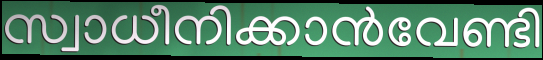
സ്വാധീനിക്കാൻവേണ്ടി